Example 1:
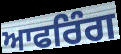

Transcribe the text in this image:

ਆਫਰਿੰਗ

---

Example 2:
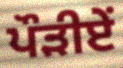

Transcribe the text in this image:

ਪੌੜੀਏਂ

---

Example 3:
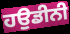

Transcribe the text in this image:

ਹਉਡੀਨੀ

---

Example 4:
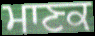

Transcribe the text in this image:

ਮਾਣਕ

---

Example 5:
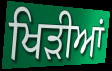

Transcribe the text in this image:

ਖਿੜੀਆਂ